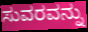
ಸುವರವನ್ನು